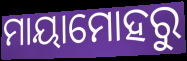
ମାୟାମୋହରୁ